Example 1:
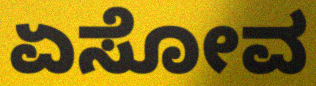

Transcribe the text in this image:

ಏಸೋವ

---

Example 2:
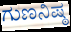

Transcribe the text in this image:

ಗುಣನಿಷ್ಠ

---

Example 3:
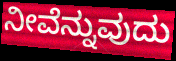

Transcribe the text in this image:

ನೀವೆನ್ನುವುದು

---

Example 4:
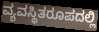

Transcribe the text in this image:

ವ್ಯವಸ್ಥಿತರೂಪದಲ್ಲಿ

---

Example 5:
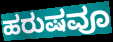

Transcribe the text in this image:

ಹರುಷವೂ